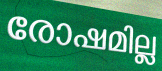
രോഷമില്ല